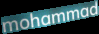
mohammad